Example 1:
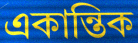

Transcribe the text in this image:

একান্তিক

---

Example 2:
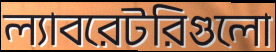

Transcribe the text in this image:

ল্যাবরেটরিগুলো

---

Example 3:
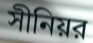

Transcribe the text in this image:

সীনিয়র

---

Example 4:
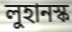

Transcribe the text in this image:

লুহানস্ক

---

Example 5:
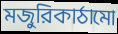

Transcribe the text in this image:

মজুরিকাঠামো